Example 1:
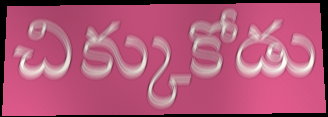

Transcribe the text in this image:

చిక్కుకోడు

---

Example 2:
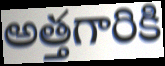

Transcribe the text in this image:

అత్తగారికి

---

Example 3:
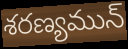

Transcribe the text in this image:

శరణ్యమున్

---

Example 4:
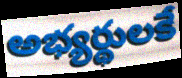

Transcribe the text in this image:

అభ్యర్థులకే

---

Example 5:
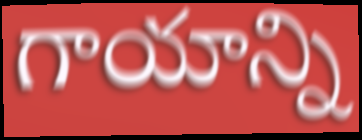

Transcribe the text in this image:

గాయాన్ని